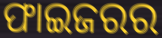
ଫାଇଜରର